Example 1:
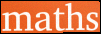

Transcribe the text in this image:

maths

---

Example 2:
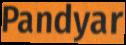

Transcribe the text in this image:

Pandyar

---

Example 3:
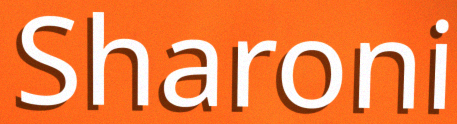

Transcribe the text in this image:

Sharoni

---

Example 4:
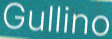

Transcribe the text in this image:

Gullino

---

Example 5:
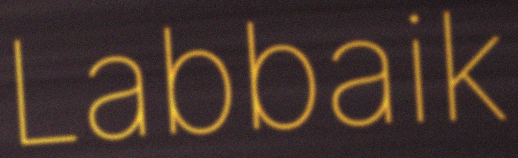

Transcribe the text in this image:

Labbaik